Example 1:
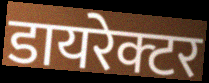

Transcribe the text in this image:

डायरेक्‍टर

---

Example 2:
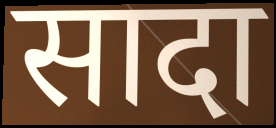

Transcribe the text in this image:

सादा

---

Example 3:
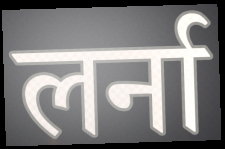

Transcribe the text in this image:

लर्ना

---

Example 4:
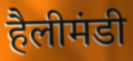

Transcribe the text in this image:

हैलीमंडी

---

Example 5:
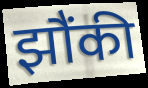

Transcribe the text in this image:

झौंकी